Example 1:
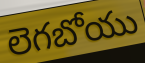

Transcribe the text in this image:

లెగబోయు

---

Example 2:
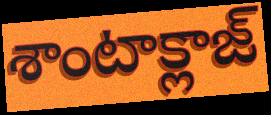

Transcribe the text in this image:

శాంటాక్లాజ్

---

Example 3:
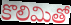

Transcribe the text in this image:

కొలిమితో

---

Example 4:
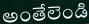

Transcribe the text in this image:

అంతేలెండి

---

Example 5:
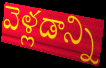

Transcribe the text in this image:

వెళ్లడాన్ని